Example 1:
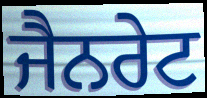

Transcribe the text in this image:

ਜੈਨਰੇਟ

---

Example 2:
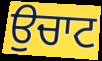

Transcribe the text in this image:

ਉਚਾਟ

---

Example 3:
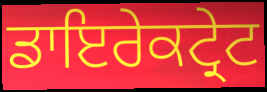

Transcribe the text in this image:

ਡਾਇਰੇਕਟ੍ਰੇਟ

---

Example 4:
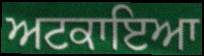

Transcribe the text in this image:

ਅਟਕਾਇਆ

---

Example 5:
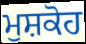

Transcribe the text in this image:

ਮੁਸ਼ਕੋਹ